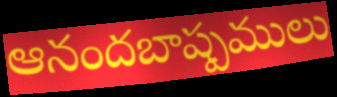
ఆనందబాష్పములు